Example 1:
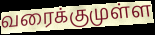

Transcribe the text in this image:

வரைக்குமுள்ள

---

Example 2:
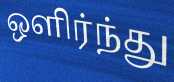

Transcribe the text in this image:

ஒளிர்ந்து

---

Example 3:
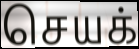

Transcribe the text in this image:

செயக்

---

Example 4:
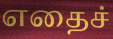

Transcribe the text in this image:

எதைச்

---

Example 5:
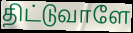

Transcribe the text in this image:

திட்டுவாளே